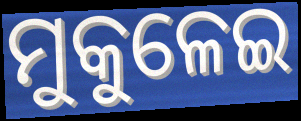
ମୁକୁଳେଇ